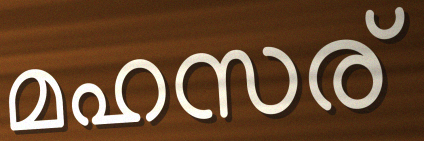
മഹസര്